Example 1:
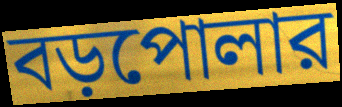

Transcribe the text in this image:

বড়পোলার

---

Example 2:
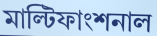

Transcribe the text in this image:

মাল্টিফাংশনাল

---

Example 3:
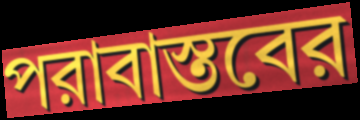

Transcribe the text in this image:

পরাবাস্তবের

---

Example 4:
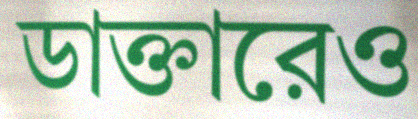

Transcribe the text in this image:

ডাক্তারেও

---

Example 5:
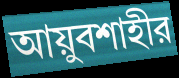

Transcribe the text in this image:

আয়ুবশাহীর